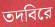
তদবিরে